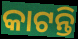
କାଟନ୍ତି